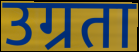
उग्रता